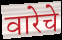
वारेचे